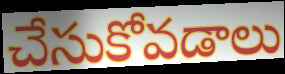
చేసుకోవడాలు